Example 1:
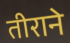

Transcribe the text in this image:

तीराने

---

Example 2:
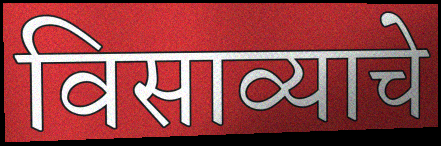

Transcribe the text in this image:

विसाव्याचे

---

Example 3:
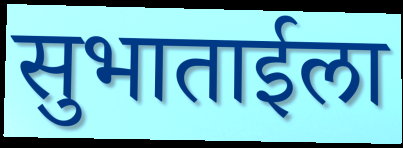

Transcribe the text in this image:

सुभाताईला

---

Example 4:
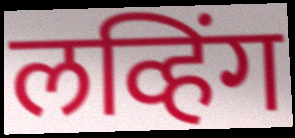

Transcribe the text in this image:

लव्हिंग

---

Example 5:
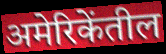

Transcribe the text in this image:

अमेरिकेंतील